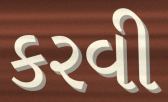
કરવી